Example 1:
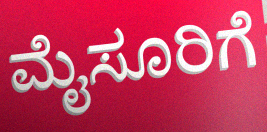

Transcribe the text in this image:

ಮೈಸೂರಿಗೆ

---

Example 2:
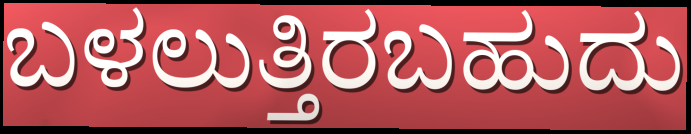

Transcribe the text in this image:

ಬಳಲುತ್ತಿರಬಹುದು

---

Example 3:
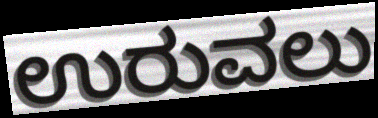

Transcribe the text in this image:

ಉರುವಲು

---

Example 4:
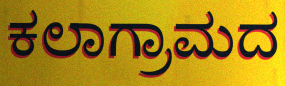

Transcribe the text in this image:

ಕಲಾಗ್ರಾಮದ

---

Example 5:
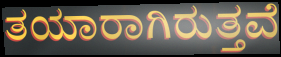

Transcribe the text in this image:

ತಯಾರಾಗಿರುತ್ತವೆ